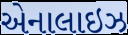
એનાલાઇઝ